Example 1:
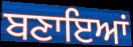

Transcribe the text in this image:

ਬਣਾਇਆਂ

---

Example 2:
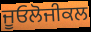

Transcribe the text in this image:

ਜੂਓਲੋਜੀਕਲ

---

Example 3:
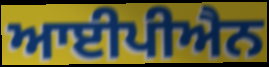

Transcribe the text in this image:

ਆਈਪੀਐਨ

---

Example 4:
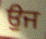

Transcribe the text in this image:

ਉਜ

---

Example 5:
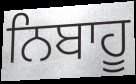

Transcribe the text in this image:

ਨਿਬਾਹੂ